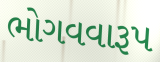
ભોગવવારૂપ